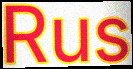
Rus